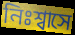
নিঃশ্বাসে